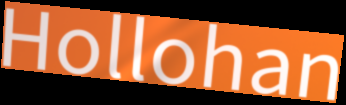
Hollohan